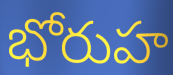
భోరుహ